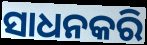
ସାଧନକରି